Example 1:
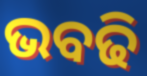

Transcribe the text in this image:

ଭବଢି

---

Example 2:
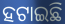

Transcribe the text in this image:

ହଟାଇଛି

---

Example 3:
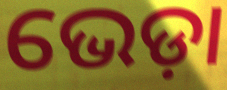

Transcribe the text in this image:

ଭେଡ଼ା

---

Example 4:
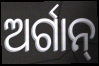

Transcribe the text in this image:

ଅର୍ଗାନ୍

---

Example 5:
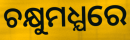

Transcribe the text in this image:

ଚକ୍ଷୁମଧ୍ଯରେ